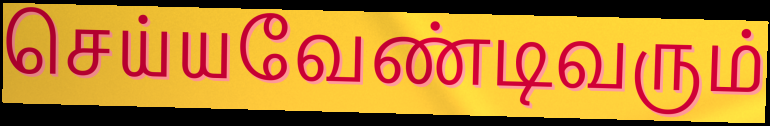
செய்யவேண்டிவரும்